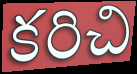
కరిచి